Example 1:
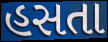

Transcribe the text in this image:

હસતા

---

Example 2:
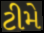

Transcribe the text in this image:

ટીમે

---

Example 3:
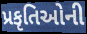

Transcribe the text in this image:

પ્રકૃતિઓની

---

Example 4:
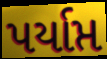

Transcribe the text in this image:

પર્યાપ્ત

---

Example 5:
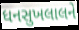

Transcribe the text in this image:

ધનસુખલાલને